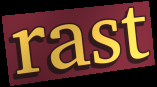
rast